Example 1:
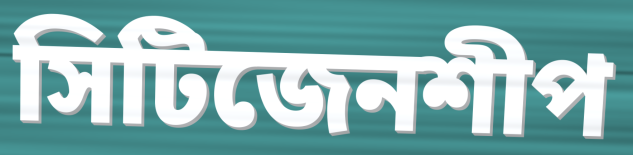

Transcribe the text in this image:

সিটিজেনশীপ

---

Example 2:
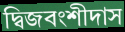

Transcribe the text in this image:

দ্বিজবংশীদাস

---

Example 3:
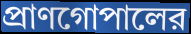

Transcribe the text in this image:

প্রাণগোপালের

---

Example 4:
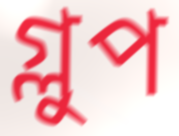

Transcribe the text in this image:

গ্লুপ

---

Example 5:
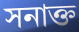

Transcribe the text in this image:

সনাক্ত